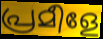
പ്രമീളേ